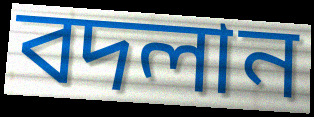
বদলান